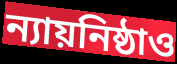
ন্যায়নিষ্ঠাও